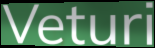
Veturi